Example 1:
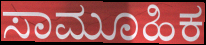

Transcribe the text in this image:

ಸಾಮೂಹಿಕ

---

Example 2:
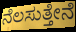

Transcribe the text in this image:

ನೆಲಸುತ್ತೇನೆ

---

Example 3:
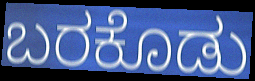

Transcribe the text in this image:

ಬರಕೊಡು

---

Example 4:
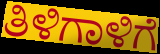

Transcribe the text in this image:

ತಿಳಿಗಾಳಿಗೆ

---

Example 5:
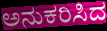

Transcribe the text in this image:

ಅನುಕರಿಸಿದ